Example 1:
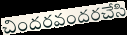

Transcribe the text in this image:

చిందరవందరచేసి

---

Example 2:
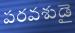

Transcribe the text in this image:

పరవశుడై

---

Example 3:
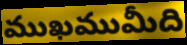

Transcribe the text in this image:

ముఖముమీది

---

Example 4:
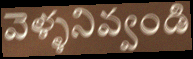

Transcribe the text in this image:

వెళ్ళనివ్వండి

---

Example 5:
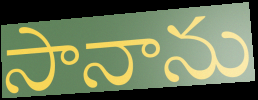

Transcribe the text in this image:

సానాను